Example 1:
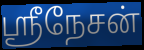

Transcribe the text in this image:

ஸ்ரீநேசன்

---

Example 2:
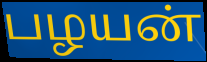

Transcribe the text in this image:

பழயன்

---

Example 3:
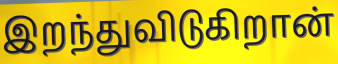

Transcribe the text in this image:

இறந்துவிடுகிறான்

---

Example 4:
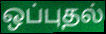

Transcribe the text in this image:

ஒப்புதல்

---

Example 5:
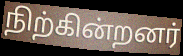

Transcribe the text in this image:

நிற்கின்றனர்